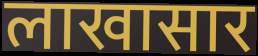
लाखासार